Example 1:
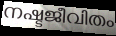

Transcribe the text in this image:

നഷ്ടജീവിതം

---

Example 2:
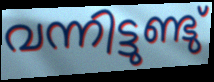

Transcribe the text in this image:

വന്നിട്ടുണ്ടു്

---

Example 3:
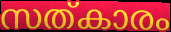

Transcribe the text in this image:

സത്കാരം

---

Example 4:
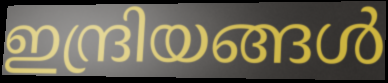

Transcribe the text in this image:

ഇന്ദ്രിയങ്ങൾ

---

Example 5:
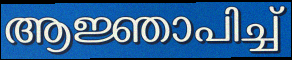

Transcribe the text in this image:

ആജ്ഞാപിച്ച്